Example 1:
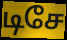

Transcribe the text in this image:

டிசே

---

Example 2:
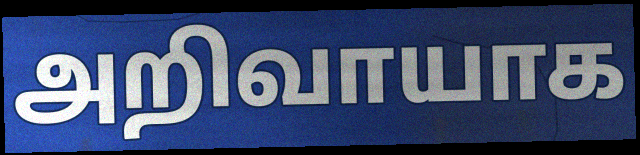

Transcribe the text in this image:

அறிவாயாக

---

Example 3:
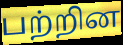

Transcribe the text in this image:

பற்றின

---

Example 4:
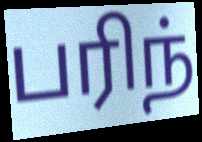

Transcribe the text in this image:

பரிந்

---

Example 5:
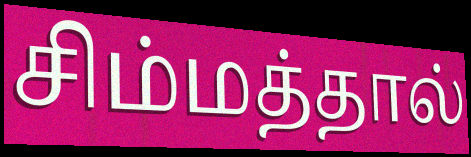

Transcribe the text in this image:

சிம்மத்தால்